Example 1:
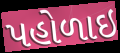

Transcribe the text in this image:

પહોળાઇ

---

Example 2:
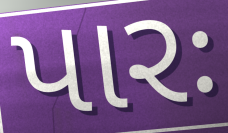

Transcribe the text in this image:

પારઃ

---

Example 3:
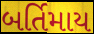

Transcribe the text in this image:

બર્તિમાય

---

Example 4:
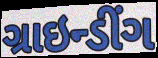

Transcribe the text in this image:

ગ્રાઇન્ડીંગ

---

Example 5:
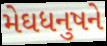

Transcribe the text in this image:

મેઘધનુષને